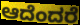
ಆದೆಂದರೆ